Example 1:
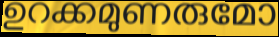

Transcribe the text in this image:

ഉറക്കമുണരുമോ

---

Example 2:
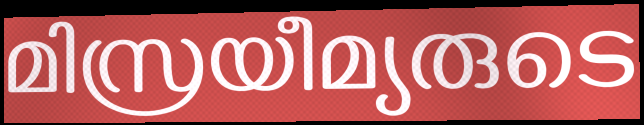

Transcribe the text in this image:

മിസ്രയീമ്യരുടെ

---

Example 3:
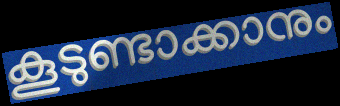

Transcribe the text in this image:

കൂടുണ്ടാക്കാനും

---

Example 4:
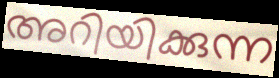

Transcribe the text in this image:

അറിയിക്കുന്ന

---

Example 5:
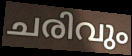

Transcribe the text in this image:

ചരിവും